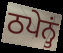
ਠਪੇਨ੍ਤਂ